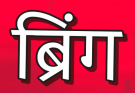
ब्रिंग